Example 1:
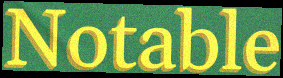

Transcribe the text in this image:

Notable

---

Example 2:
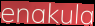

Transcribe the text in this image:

enakula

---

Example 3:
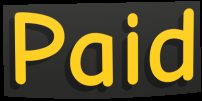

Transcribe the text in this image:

Paid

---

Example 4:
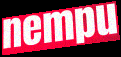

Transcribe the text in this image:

nempu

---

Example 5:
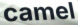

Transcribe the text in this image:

camel